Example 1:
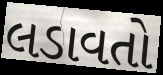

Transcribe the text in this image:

લડાવતો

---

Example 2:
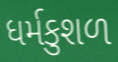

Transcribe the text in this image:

ધર્મકુશળ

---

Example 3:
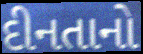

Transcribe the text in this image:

દીનતાનો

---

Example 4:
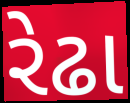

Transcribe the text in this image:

રેઢા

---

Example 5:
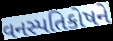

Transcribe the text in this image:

વનસ્પતિકોષને